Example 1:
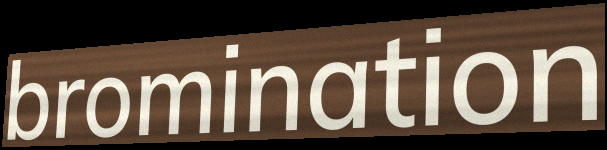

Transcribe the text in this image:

bromination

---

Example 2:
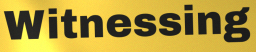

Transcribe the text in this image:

Witnessing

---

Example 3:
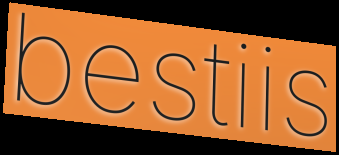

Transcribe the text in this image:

bestiis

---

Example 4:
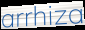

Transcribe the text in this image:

arrhiza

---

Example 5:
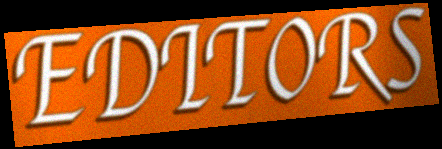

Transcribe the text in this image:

EDITORS